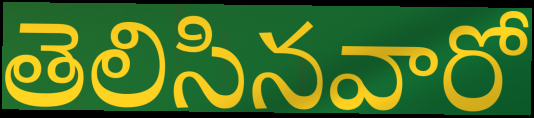
తెలిసినవారో